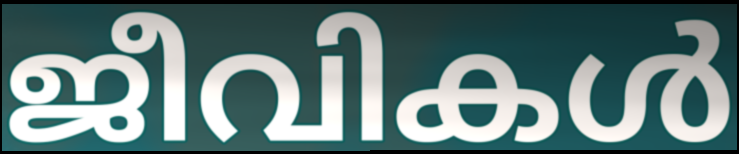
ജീവികൾ